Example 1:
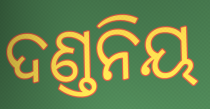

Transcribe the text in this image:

ଦଣ୍ଡନିୟ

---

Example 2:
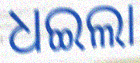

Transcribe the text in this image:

ଧଇଲା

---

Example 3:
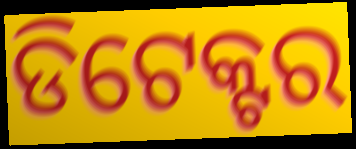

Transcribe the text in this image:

ଡିଟେକ୍ଟର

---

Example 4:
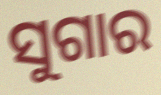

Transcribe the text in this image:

ସୁଗାର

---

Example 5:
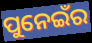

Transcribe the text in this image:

ପୁନେଇଁର